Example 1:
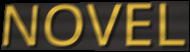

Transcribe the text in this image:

NOVEL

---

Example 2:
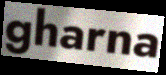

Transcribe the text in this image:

gharna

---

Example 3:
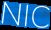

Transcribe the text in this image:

NIC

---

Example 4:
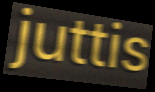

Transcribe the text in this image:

juttis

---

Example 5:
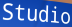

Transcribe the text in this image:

Studio